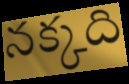
నక్కది